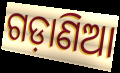
ଗଡ଼ାଣିଆ